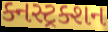
ક્નસ્ટ્રક્શન